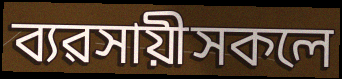
ব্যৱসায়ীসকলে